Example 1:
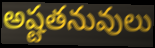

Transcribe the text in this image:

అష్టతనువులు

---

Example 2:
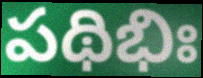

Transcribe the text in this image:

పథిభిః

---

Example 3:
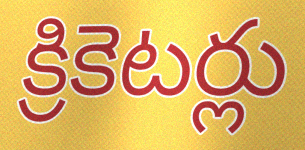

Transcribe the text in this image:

క్రికెటర్లు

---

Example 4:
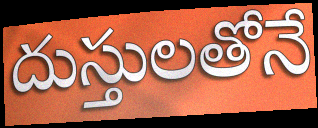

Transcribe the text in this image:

దుస్తులతోనే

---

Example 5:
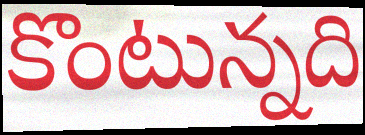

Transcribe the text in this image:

కొంటున్నది